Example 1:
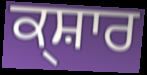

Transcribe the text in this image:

ਕ੍ਸ਼ਾਰ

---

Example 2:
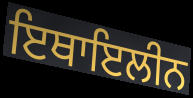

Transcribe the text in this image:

ਇਥਾਇਲੀਨ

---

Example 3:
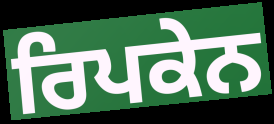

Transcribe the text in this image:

ਰਿਪਕੇਨ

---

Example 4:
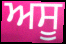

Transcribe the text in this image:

ਅਸੂ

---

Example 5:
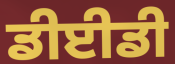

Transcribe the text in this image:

ਡੀਈਡੀ